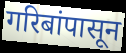
गरिबांपासून